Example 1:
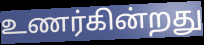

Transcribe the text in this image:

உணர்கின்றது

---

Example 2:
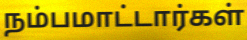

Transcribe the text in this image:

நம்பமாட்டார்கள்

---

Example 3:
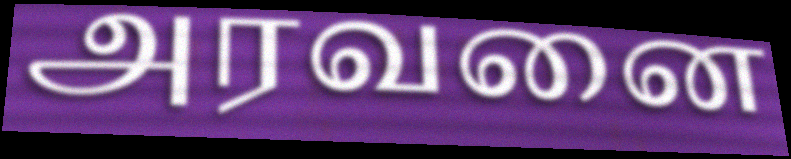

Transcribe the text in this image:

அரவனை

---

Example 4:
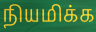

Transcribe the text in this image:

நியமிக்க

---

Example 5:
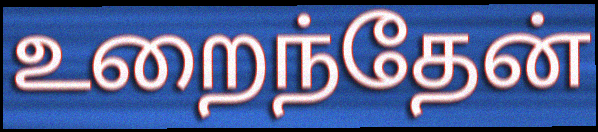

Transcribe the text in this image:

உறைந்தேன்